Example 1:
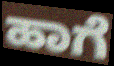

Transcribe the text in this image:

ಹಾಗೆ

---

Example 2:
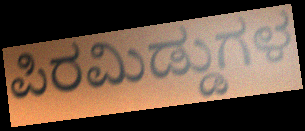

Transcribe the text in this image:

ಪಿರಮಿಡ್ಡುಗಳ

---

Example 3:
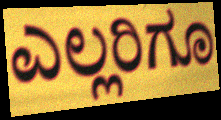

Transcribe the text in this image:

ಎಲ್ಲರಿಗೂ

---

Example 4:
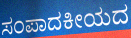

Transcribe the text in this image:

ಸಂಪಾದಕೀಯದ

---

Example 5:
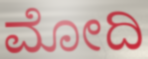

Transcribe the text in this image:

ಮೋದಿ